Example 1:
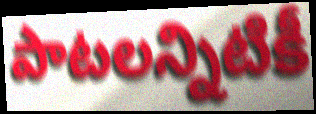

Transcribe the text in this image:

పాటలన్నిటికీ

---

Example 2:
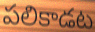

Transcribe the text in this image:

పలికాడట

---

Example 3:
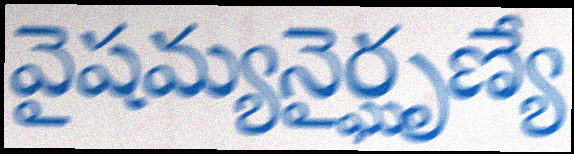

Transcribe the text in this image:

వైషమ్యనైర్ఘృణ్యే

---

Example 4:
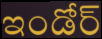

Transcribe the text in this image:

ఇండోర్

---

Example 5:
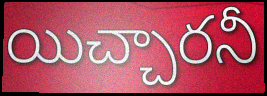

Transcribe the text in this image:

యిచ్చారనీ